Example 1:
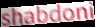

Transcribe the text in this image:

shabdoni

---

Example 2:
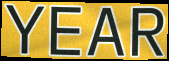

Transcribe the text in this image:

YEAR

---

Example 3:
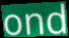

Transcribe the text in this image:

ond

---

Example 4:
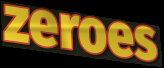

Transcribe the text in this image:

zeroes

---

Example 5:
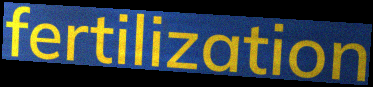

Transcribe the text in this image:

fertilization